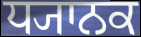
ਧ੍ਯਾਨਕ